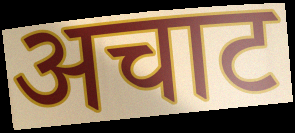
अचाट